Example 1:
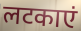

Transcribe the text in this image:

लटकाएं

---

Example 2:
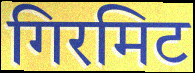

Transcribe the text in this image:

गिरमिट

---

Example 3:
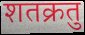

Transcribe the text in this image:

शतक्रतु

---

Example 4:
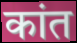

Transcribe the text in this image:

कांत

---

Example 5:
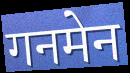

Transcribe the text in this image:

गनमेन